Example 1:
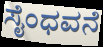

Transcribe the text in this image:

ಸೈಂಧವನೆ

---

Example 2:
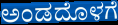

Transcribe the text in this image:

ಅಂಡದೊಳಗೆ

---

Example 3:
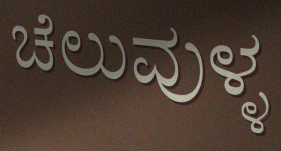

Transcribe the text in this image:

ಚೆಲುವುಳ್ಳ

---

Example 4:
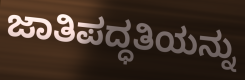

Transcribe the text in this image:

ಜಾತಿಪದ್ಧತಿಯನ್ನು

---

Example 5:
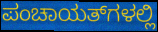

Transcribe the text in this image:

ಪಂಚಾಯತ್‌ಗಳಲ್ಲಿ